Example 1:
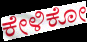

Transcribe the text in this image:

ಕೇಳಿಕೋ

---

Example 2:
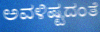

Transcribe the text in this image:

ಅವಳಿಷ್ಟದಂತೆ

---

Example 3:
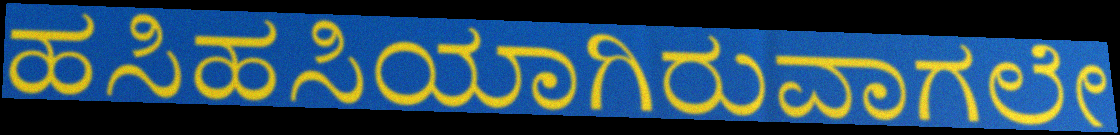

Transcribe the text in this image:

ಹಸಿಹಸಿಯಾಗಿರುವಾಗಲೇ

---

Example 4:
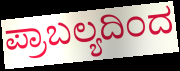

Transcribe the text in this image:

ಪ್ರಾಬಲ್ಯದಿಂದ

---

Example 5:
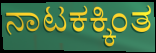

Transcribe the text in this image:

ನಾಟಕಕ್ಕಿಂತ